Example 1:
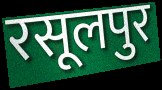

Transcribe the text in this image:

रसूलपुर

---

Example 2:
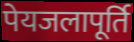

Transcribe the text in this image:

पेयजलापूर्ति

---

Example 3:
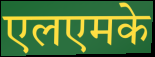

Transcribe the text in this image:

एलएमके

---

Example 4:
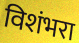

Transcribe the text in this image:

विशंभरा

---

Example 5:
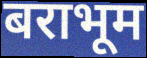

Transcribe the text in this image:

बराभूम